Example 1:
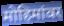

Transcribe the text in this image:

मोहिमांवर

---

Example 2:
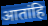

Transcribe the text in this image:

आतांहि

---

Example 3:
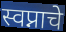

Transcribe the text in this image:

स्वप्नाचे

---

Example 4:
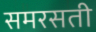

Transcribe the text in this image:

समरसती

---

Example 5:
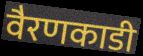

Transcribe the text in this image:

वैरणकाडी